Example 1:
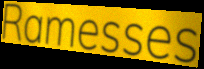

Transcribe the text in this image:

Ramesses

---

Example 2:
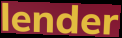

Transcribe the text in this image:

lender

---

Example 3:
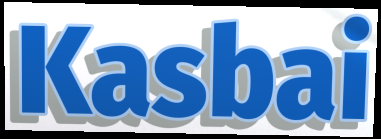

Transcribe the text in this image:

Kasbai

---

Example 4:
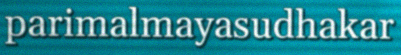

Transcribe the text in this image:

parimalmayasudhakar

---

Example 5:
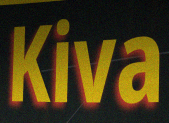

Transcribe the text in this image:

Kiva